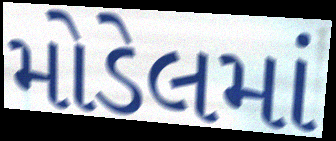
મોડેલમાં